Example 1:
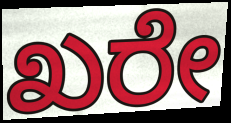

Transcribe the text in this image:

ಖರೇ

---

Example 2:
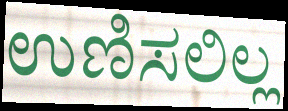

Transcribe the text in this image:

ಉಣಿಸಲಿಲ್ಲ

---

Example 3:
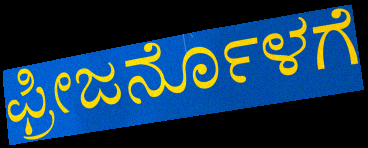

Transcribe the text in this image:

ಫ್ರೀಜರ್ನೊಳಗೆ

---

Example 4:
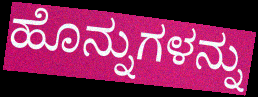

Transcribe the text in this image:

ಹೊನ್ನುಗಳನ್ನು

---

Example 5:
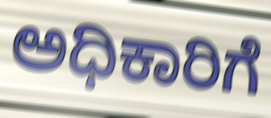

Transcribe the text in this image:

ಅಧಿಕಾರಿಗೆ